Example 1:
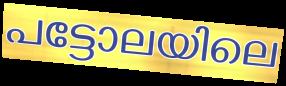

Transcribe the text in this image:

പട്ടോലയിലെ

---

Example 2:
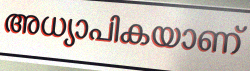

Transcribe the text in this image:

അധ്യാപികയാണ്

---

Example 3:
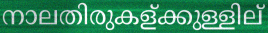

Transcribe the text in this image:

നാലതിരുകള്ക്കുള്ളില്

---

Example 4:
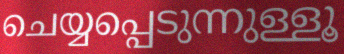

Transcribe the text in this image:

ചെയ്യപ്പെടുന്നുള്ളൂ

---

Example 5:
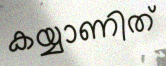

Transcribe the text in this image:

കയ്യാണിത്